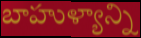
బాహుళ్యాన్ని